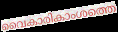
വൈകാരികാംശത്തെ